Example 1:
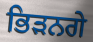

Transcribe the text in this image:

ਭਿੜਨਗੇ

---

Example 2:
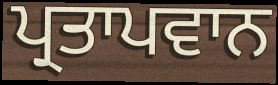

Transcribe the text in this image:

ਪ੍ਰਤਾਪਵਾਨ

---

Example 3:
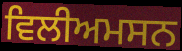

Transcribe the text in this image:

ਵਿਲੀਅਮਸਨ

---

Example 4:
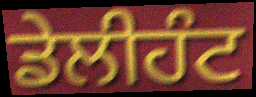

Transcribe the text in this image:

ਡੇਲੀਹੰਟ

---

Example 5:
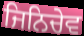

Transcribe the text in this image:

ਜਿਨਿਚੇਵ